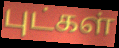
புட்கள்